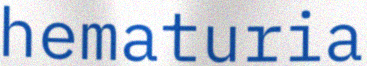
hematuria